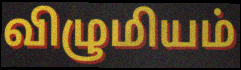
விழுமியம்